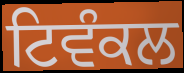
ਟਿਵੰਕਲ